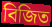
বিজিত